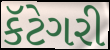
કૅટેગરી